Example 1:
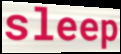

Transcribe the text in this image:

sleep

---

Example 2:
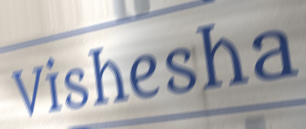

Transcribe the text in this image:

Vishesha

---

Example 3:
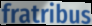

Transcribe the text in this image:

fratribus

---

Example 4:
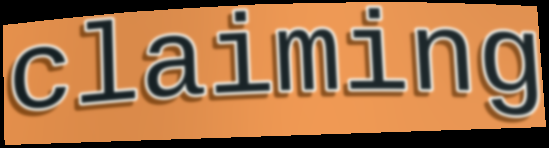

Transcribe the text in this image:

claiming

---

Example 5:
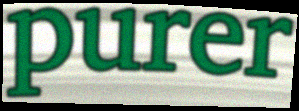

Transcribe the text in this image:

purer